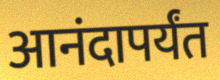
आनंदापर्यंत